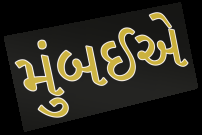
મુંબઈએ